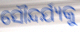
ସୌନ୍ଦର୍ଯ୍ଯକୁ